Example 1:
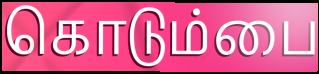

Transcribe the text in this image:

கொடும்பை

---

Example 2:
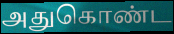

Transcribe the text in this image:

அதுகொண்ட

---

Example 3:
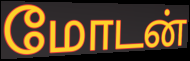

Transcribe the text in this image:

மோடன்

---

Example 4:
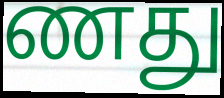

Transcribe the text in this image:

ணது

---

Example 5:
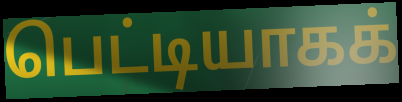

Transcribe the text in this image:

பெட்டியாகக்